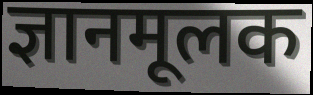
ज्ञानमूलक